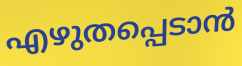
എഴുതപ്പെടാൻ